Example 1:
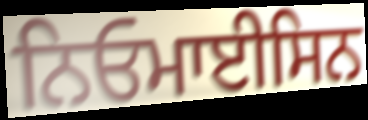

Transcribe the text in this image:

ਨਿਓਮਾਈਸਿਨ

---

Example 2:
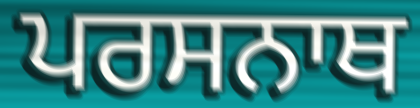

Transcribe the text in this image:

ਪਰਸਨਾਥ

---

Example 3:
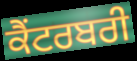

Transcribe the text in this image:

ਕੈਂਟਰਬਰੀ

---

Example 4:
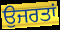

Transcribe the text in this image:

ਉਜਰਤਾਂ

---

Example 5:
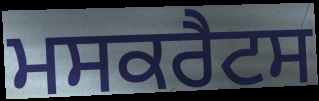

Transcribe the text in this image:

ਮਸਕਰੈਟਸ